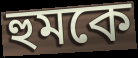
হুমকে